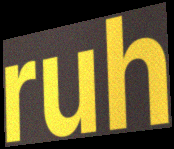
ruh